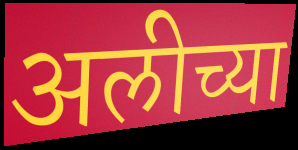
अलीच्या